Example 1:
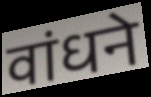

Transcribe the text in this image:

वांधने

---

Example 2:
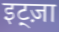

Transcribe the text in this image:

इट्ज़ा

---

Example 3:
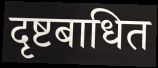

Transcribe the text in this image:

दृष्टबाधित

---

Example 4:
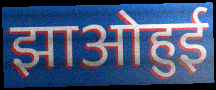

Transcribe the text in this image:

झाओहुई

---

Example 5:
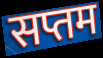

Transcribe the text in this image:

सप्तम